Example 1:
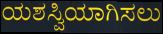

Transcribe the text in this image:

ಯಶಸ್ವಿಯಾಗಿಸಲು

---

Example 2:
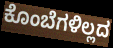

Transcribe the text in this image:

ಕೊಂಬೆಗಳಿಲ್ಲದ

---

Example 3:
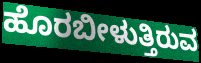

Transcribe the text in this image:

ಹೊರಬೀಳುತ್ತಿರುವ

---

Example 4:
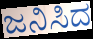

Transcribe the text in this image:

ಜನಿಸಿದ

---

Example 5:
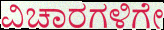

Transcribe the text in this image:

ವಿಚಾರಗಳಿಗೇ